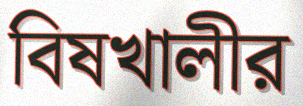
বিষখালীর